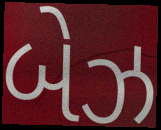
બેઝ